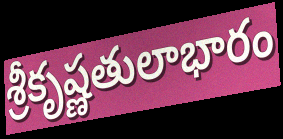
శ్రీకృష్ణతులాభారం